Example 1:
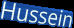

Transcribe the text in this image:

Hussein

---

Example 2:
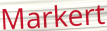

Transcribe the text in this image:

Markert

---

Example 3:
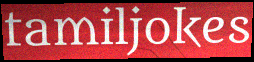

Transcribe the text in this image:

tamiljokes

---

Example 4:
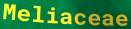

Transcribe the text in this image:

Meliaceae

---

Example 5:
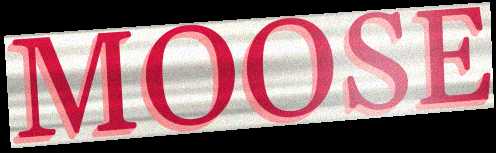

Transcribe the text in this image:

MOOSE